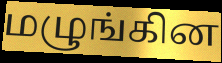
மழுங்கின